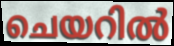
ചെയറിൽ